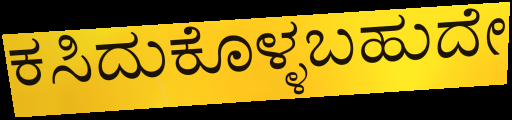
ಕಸಿದುಕೊಳ್ಳಬಹುದೇ